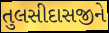
તુલસીદાસજીને